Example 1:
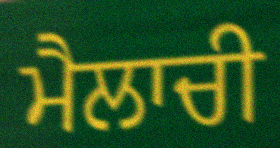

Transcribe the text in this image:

ਮੈਲਾਚੀ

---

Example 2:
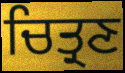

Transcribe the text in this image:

ਚਿਤ੍ਰਣ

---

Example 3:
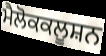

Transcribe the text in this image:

ਮੈਲੋਕਕਲੂਸ਼ਨ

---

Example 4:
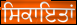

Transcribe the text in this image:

ਸਿਕਾਇਤਾਂ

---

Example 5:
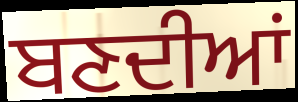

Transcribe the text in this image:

ਬਣਦੀਆਂ